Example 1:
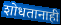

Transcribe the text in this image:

शोधतानाही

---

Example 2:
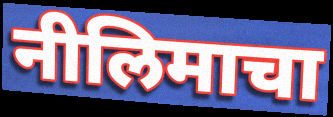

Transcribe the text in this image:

नीलिमाचा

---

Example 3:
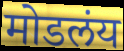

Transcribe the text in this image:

मोडलंय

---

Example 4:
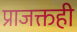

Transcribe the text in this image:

प्राजक्तही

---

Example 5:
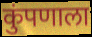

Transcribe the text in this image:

कुंपणाला